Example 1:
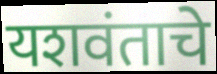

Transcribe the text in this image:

यशवंताचे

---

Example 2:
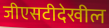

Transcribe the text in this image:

जीएसटीदेखील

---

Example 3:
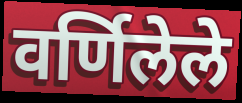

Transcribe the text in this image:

वर्णिलेले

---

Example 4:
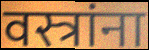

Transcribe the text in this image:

वस्त्रांना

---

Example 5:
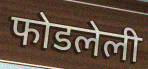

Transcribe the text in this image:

फोडलेली